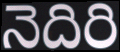
నెదిరి